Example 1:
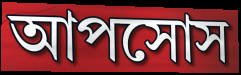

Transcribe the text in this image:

আপসোস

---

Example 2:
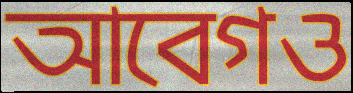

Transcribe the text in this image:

আবেগও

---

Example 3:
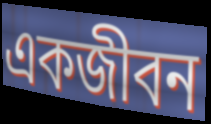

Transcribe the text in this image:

একজীবন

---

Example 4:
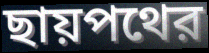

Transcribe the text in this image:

ছায়পথের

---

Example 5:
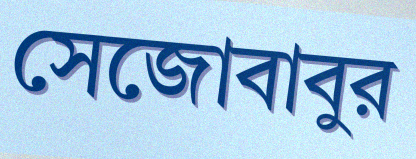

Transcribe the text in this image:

সেজোবাবুর